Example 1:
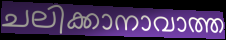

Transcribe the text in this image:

ചലിക്കാനാവാത്ത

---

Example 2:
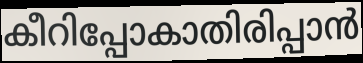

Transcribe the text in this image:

കീറിപ്പോകാതിരിപ്പാൻ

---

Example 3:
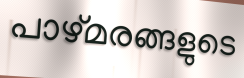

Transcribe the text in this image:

പാഴ്മരങ്ങളുടെ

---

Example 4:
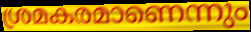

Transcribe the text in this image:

ശ്രമകരമാണെന്നും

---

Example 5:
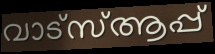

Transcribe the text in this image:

വാട്സ്ആപ്പ്